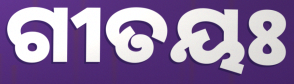
ଗୀତୟଃ